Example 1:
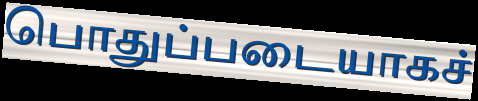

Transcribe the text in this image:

பொதுப்படையாகச்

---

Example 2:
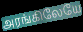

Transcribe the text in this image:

அரங்கிலேயே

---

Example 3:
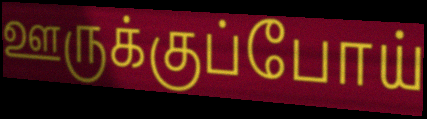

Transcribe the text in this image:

ஊருக்குப்போய்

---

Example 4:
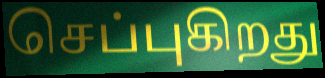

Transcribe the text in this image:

செப்புகிறது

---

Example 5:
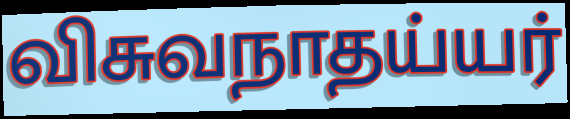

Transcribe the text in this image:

விசுவநாதய்யர்